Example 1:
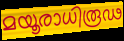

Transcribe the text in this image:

മയൂരാധിരൂഢ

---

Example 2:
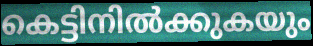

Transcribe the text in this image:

കെട്ടിനിൽക്കുകയും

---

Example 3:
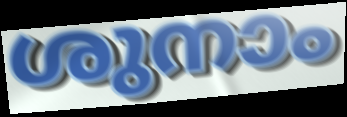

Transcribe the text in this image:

ശുനാം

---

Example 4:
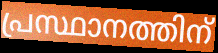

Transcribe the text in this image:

പ്രസ്ഥാനത്തിന്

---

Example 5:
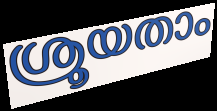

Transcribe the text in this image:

ശ്രൂയതാം